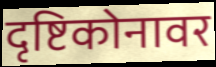
दृष्टिकोनावर